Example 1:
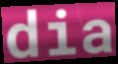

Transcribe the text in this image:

dia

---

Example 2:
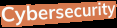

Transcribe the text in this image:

Cybersecurity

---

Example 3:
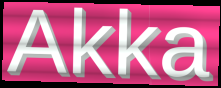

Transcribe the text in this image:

Akka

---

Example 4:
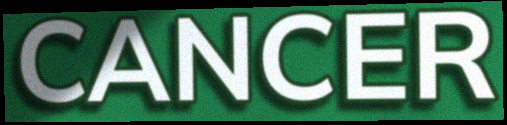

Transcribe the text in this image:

CANCER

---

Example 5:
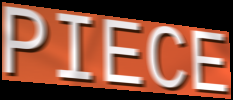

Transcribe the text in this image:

PIECE